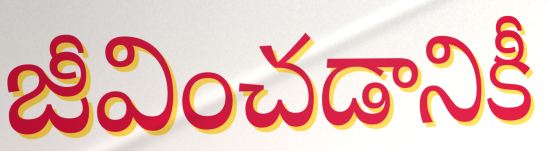
జీవించడానికీ